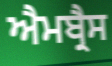
ਐਮਬ੍ਰੈਸ